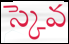
స్కెవ